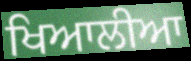
ਖਿਆਲੀਆ